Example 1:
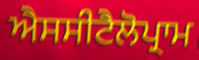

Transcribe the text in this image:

ਐਸਸੀਟੈਲੋਪ੍ਰਾਮ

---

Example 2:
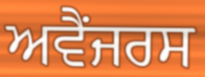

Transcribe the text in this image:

ਅਵੈਂਜਰਸ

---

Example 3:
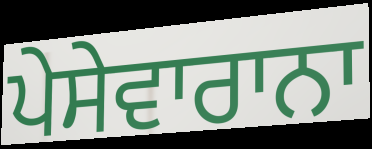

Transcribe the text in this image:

ਪੇਸੇਵਾਰਾਨਾ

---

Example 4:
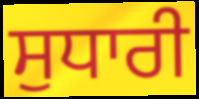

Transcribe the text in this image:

ਸੁਧਾਰੀ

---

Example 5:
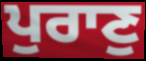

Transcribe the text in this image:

ਪੁਰਾਣੁ